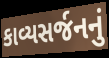
કાવ્યસર્જનનું